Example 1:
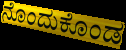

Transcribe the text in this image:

ನೊಂದುಕೊಂಡ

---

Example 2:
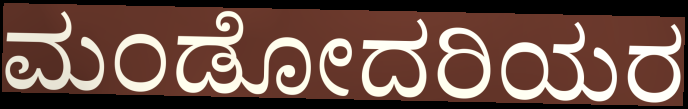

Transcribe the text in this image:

ಮಂಡೋದರಿಯರ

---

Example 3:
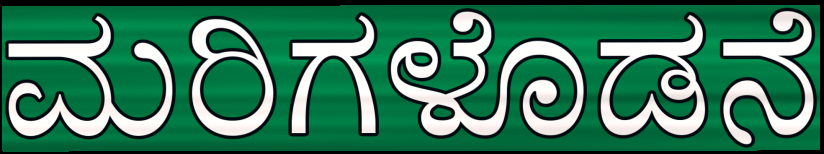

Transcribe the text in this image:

ಮರಿಗಳೊಡನೆ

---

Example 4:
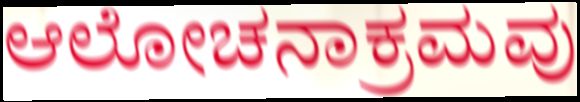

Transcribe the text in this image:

ಆಲೋಚನಾಕ್ರಮವು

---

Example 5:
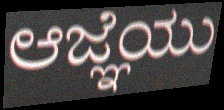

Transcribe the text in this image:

ಆಜ್ಞೆಯು